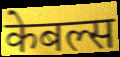
केबल्स